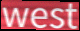
west